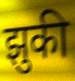
झुकी